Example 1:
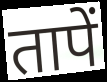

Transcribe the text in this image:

तापें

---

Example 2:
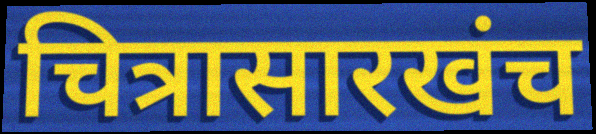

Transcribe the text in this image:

चित्रासारखंच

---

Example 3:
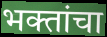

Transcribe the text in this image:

भक्तांचा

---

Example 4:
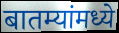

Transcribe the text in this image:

बातम्यांमध्ये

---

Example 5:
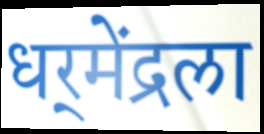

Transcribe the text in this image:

धर्मेंद्रला